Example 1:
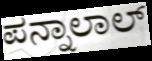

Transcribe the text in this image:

ಪನ್ನಾಲಾಲ್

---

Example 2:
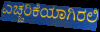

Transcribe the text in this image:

ಎಚ್ಚರಿಕೆಯಾಗಿರಲಿ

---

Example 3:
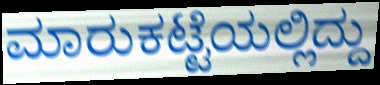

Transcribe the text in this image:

ಮಾರುಕಟ್ಟೆಯಲ್ಲಿದ್ದು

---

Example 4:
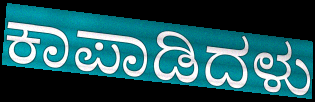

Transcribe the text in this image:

ಕಾಪಾಡಿದಳು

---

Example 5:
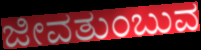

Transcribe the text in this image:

ಜೀವತುಂಬುವ